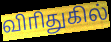
விரிதுகில்